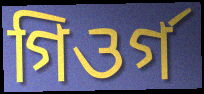
গিওৰ্গ